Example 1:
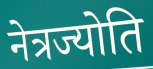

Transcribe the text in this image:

नेत्रज्योति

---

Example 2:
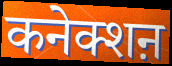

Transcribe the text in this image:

कनेक्शऩ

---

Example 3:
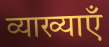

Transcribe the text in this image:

व्याख्याएँ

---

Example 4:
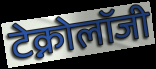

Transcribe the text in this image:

टेक्नोलॉजी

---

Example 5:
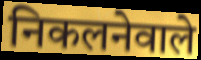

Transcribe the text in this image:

निकलनेवाले